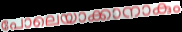
പോലെയാക്കാനാകും